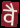
वै